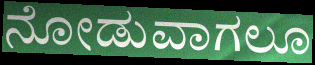
ನೋಡುವಾಗಲೂ